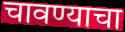
चावण्याचा